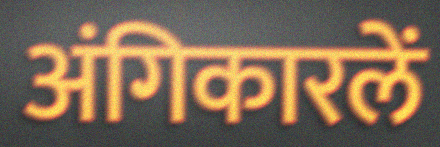
अंगिकारलें